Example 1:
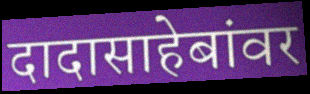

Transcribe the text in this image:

दादासाहेबांवर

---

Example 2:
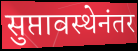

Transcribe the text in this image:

सुप्तावस्थेनंतर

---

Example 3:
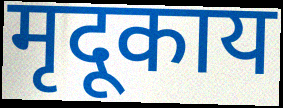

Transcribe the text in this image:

मृदूकाय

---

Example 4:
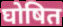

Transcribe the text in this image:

घोषित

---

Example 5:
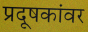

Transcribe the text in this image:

प्रदूषकांवर